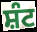
ਸ਼ੰਟ